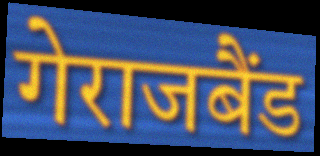
गेराजबैंड